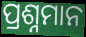
ପ୍ରଶ୍ନମାନ